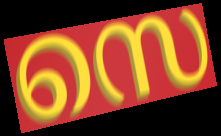
സെ